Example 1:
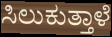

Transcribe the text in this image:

ಸಿಲುಕುತ್ತಾಳೆ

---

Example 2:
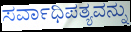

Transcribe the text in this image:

ಸರ್ವಾಧಿಪತ್ಯವನ್ನು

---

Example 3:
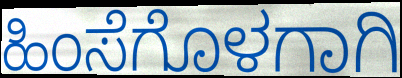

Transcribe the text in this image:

ಹಿಂಸೆಗೊಳಗಾಗಿ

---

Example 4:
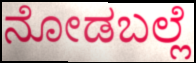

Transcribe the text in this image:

ನೋಡಬಲ್ಲೆ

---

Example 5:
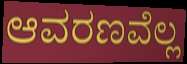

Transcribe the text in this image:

ಆವರಣವೆಲ್ಲ